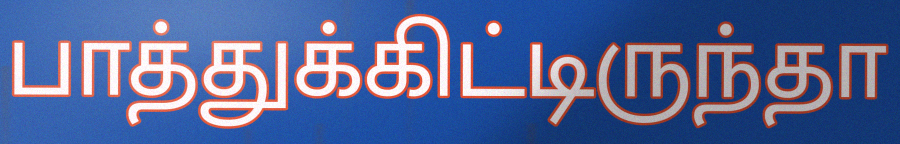
பாத்துக்கிட்டிருந்தா